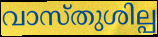
വാസ്തുശില്പ